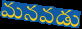
మనవడు